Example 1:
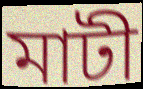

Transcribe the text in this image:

মাটী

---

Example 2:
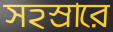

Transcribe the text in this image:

সহস্রারে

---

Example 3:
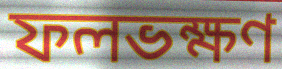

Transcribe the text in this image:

ফলভক্ষণ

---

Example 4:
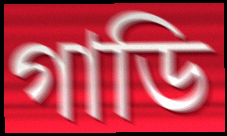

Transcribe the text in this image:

গাডি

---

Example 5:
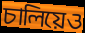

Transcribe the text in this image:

চালিয়েও